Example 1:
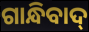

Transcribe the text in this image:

ଗାନ୍ଧିବାଦ୍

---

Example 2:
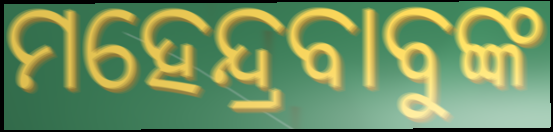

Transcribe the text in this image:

ମହେନ୍ଦ୍ରବାବୁଙ୍କ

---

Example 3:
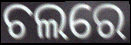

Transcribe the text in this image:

ଚଲରେ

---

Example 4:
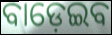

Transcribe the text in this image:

ବାଡ଼େଇବ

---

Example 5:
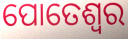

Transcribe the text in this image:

ପୋତେଶ୍ବର